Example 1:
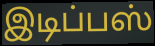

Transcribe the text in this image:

இடிப்பஸ்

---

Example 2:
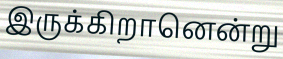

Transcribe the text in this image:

இருக்கிறானென்று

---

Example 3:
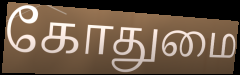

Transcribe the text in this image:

கோதுமை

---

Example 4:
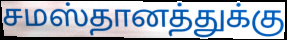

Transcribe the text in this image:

சமஸ்தானத்துக்கு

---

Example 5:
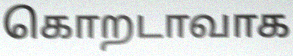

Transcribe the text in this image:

கொறடாவாக